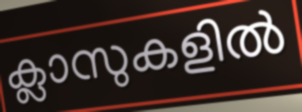
ക്ലാസുകളിൽ